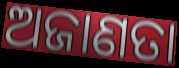
ଅଜାଣତା